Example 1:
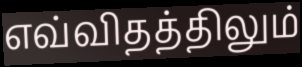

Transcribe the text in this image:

எவ்விதத்திலும்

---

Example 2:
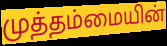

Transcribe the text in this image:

முத்தம்மையின்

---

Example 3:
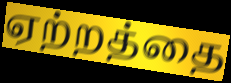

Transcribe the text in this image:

ஏற்றத்தை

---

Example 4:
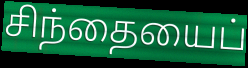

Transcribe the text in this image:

சிந்தையைப்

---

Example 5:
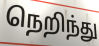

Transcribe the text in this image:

நெறிந்து